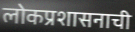
लोकप्रशासनाची